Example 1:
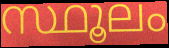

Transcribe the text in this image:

സ്ഥൂലം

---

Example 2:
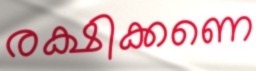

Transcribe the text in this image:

രക്ഷിക്കണെ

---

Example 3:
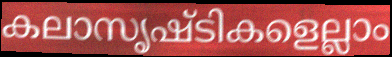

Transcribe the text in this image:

കലാസൃഷ്ടികളെല്ലാം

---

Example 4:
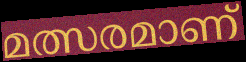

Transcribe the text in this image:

മത്സരമാണ്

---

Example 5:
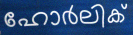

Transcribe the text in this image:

ഹോർലിക്